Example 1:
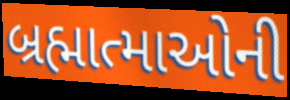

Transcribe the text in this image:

બ્રહ્માત્માઓની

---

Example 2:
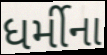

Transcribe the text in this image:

ધર્મીના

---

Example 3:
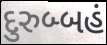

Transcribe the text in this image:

દુરુબ્બહં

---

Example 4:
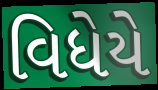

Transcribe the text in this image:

વિધેયે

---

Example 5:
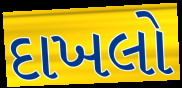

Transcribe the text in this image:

દાખલો